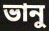
ভানু